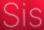
Sis